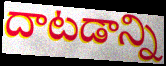
దాటడాన్ని